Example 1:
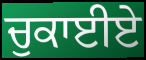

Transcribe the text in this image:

ਚੁਕਾਈਏ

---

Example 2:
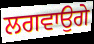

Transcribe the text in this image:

ਲਗਵਾਉਗੇ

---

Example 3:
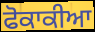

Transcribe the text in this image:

ਫੋਕਾਕੀਆ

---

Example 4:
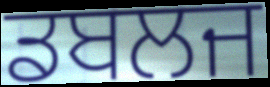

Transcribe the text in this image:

ਡਬਲਜ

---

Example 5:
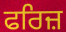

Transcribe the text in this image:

ਫਰਿਜ਼